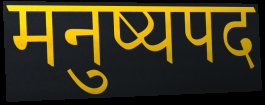
मनुष्यपद